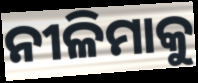
ନୀଳିମାକୁ